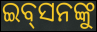
ଇବ୍‌ସନଙ୍କୁ